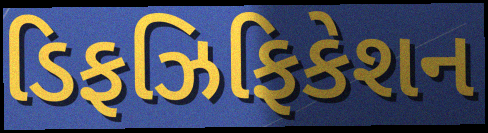
ડિફઝિફિકેશન